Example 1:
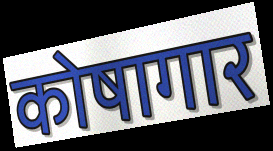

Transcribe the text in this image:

कोषागार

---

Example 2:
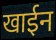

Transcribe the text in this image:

खाईन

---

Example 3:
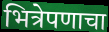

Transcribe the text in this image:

भित्रेपणाचा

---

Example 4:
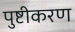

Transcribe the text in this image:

पुष्टीकरण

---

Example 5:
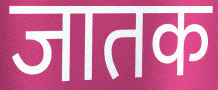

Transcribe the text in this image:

जातक